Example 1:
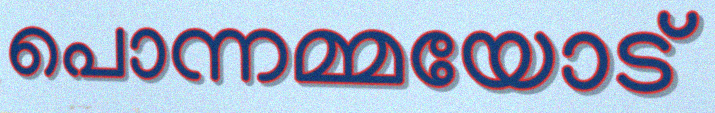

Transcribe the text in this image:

പൊന്നമ്മയോട്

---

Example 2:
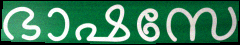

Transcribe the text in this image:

ഭാഷസേ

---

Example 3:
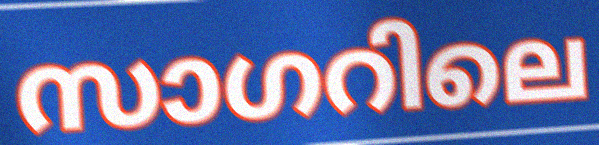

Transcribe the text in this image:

സാഗറിലെ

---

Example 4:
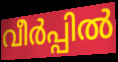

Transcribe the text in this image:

വീർപ്പിൽ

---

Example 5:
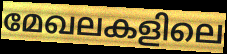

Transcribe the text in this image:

മേഖലകളിലെ